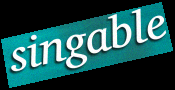
singable